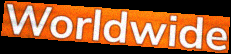
Worldwide